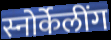
स्नोर्केलींग